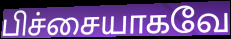
பிச்சையாகவே